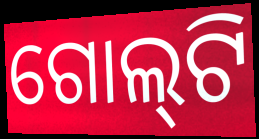
ଗୋଲ୍‍ଟି